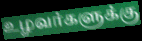
உழவர்களுக்கு